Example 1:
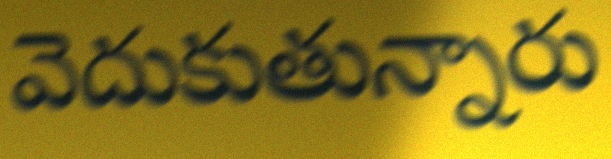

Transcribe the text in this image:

వెదుకుతున్నారు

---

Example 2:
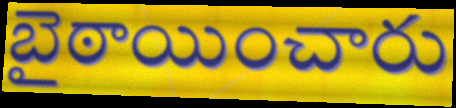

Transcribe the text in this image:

బైఠాయించారు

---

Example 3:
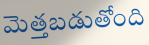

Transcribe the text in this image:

మెత్తబడుతోంది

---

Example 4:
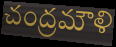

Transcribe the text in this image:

చంద్రమౌళి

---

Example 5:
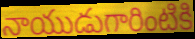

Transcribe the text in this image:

నాయుడుగారింటికి